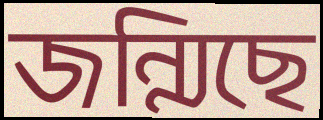
জন্মিছে